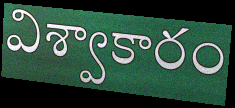
విశ్వాకారం